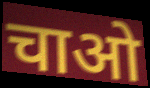
चाओ